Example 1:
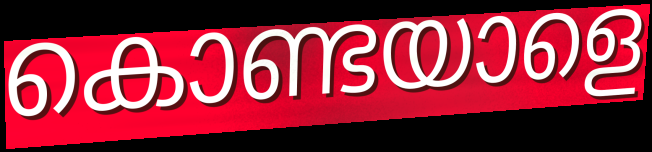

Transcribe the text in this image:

കൊണ്ടയാളെ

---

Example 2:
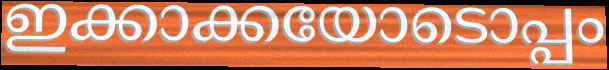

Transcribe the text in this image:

ഇക്കാക്കയോടൊപ്പം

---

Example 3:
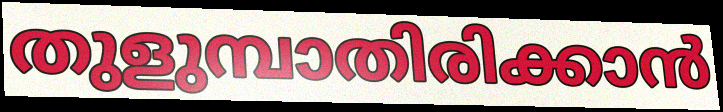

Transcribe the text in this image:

തുളുമ്പാതിരിക്കാൻ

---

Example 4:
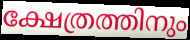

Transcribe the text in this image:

ക്ഷേത്രത്തിനും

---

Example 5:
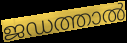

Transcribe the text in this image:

ജഡത്താൽ